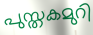
പുസ്തകമുറി